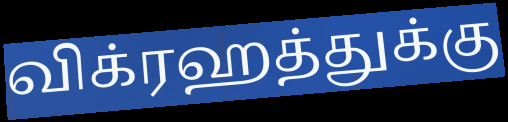
விக்ரஹத்துக்கு